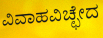
ವಿವಾಹವಿಚ್ಛೇದ